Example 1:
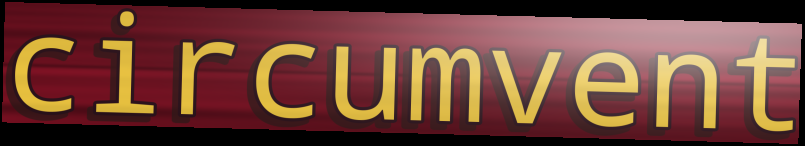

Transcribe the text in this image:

circumvent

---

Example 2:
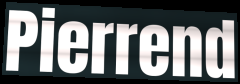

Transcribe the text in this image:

Pierrend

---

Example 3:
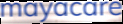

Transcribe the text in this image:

mayacare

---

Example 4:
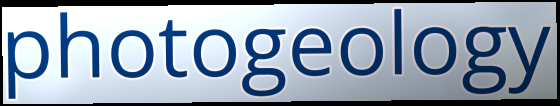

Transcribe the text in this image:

photogeology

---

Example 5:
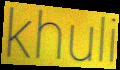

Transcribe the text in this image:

khuli